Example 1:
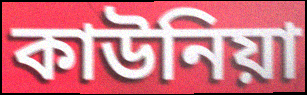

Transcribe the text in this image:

কাউনিয়া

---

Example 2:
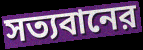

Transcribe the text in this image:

সত্যবানের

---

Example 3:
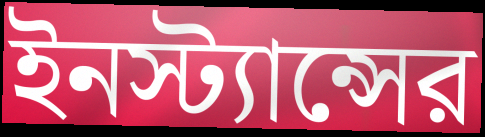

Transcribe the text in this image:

ইনস্ট্যান্সের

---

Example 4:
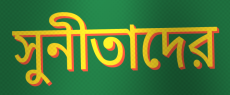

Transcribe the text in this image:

সুনীতাদের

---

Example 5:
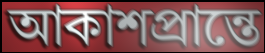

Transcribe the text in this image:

আকাশপ্রান্তে